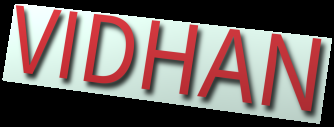
VIDHAN